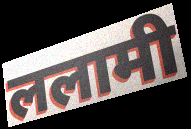
ललामी